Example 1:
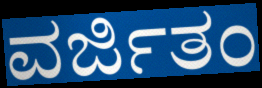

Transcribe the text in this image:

ವರ್ಜಿತಂ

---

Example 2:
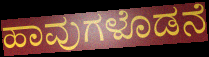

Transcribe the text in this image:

ಹಾವುಗಳೊಡನೆ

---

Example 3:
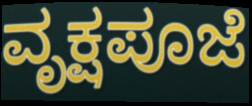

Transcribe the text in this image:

ವೃಕ್ಷಪೂಜೆ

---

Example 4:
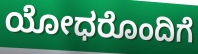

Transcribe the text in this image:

ಯೋಧರೊಂದಿಗೆ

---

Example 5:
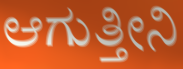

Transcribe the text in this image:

ಆಗುತ್ತೀನಿ